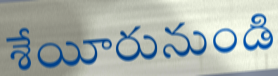
శేయీరునుండి